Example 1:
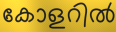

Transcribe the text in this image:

കോളറിൽ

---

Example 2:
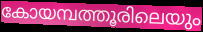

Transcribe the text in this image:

കോയമ്പത്തൂരിലെയും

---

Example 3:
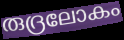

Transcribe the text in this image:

രുദ്രലോകം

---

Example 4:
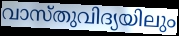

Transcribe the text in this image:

വാസ്തുവിദ്യയിലും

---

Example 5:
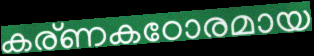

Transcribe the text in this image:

കര്ണകഠോരമായ